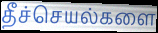
தீச்செயல்களை